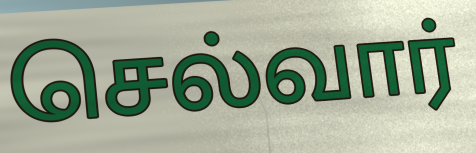
செல்வார்